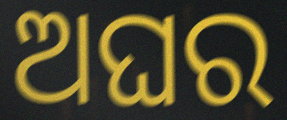
ଅଘର